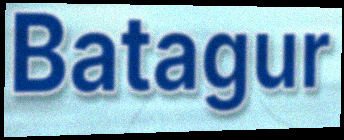
Batagur